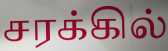
சரக்கில்